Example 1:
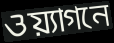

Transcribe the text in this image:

ওয়্যাগনে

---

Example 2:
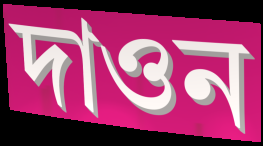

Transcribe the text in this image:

দাওন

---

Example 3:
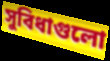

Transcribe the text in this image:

সুবিধাগুলো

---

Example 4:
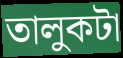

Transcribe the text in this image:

তালুকটা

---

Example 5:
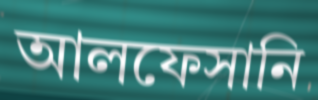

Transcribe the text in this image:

আলফেসানি